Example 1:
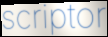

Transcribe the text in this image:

scriptor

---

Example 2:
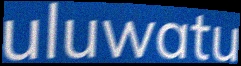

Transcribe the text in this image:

uluwatu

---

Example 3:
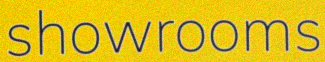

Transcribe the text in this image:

showrooms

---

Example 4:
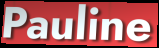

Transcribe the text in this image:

Pauline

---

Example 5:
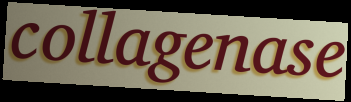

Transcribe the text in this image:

collagenase